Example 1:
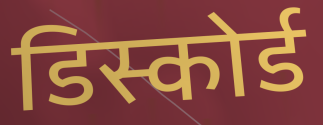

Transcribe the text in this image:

डिस्कोर्ड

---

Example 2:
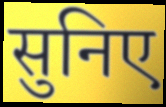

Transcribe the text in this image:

सुनिए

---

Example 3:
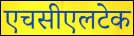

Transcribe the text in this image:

एचसीएलटेक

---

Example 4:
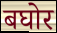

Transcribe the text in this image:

बघोर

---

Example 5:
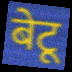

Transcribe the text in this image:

बेटू